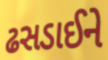
ઢસડાઈને